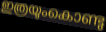
ഇത്രയുംകൊണ്ടു